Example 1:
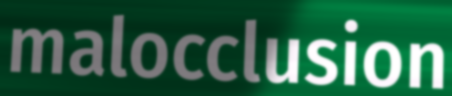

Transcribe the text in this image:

malocclusion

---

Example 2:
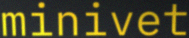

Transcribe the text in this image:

minivet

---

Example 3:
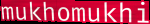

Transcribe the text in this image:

mukhomukhi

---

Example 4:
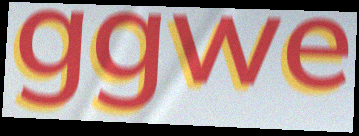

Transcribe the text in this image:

ggwe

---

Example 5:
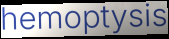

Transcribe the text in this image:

hemoptysis